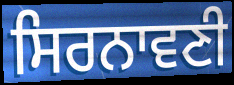
ਸਿਰਨਾਵਣੀ